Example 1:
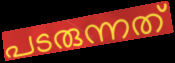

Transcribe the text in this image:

പടരുന്നത്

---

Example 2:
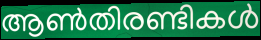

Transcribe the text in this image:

ആൺതിരണ്ടികൾ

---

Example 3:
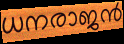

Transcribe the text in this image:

ധനരാജൻ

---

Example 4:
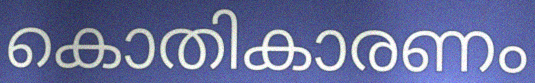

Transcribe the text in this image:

കൊതികാരണം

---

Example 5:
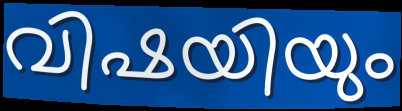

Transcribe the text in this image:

വിഷയിയും